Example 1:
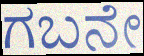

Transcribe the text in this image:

ಗಬನೇ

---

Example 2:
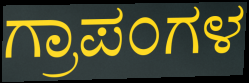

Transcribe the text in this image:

ಗ್ರಾಪಂಗಳ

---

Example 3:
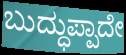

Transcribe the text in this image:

ಬುದ್ಧುಪ್ಪಾದೇ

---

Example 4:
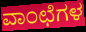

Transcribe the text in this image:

ವಾಂಛೆಗಳ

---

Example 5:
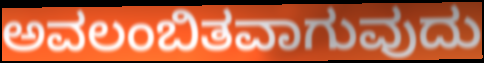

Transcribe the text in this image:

ಅವಲಂಬಿತವಾಗುವುದು